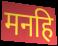
मनहि